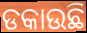
ଡକାଉଛି